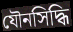
যৌনসিদ্ধি